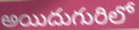
అయిదుగురిలో